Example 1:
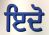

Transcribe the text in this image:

ਇਦੋ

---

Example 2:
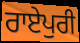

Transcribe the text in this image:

ਰਾਏਪੁਰੀ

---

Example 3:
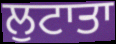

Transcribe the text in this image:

ਲੁਟਾਤਾ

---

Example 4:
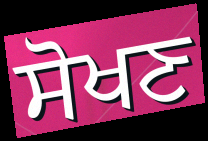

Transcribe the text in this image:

ਸੋਖਣ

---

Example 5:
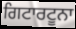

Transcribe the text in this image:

ਗਿਟਾਰਟੂਨਾ